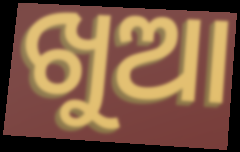
ଖୁଆ